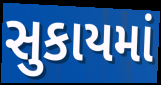
સુકાયમાં